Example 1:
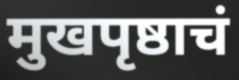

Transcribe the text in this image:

मुखपृष्ठाचं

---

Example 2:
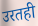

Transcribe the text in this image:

उरतही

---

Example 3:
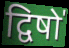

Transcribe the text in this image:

द्विषो॑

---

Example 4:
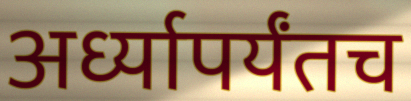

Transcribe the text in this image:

अर्ध्यापर्यंतच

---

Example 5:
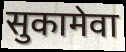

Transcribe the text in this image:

सुकामेवा